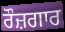
ਰੌਜ਼ਗਾਰ